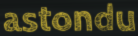
astondu